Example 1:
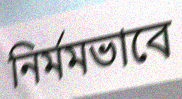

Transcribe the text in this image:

নির্মমভাবে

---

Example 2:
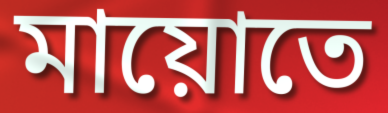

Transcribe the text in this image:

মায়োতে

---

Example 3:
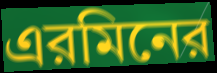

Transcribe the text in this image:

এরমিনের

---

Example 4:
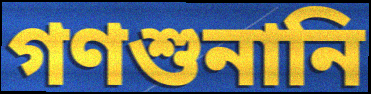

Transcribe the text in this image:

গণশুনানি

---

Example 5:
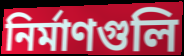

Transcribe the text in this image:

নির্মাণগুলি